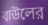
বাউলের